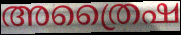
അത്രൈഷ